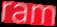
ram